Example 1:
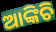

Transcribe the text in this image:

ଆଙ୍କିଚି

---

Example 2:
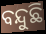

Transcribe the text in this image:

ବନ୍ଦୁଛି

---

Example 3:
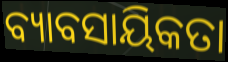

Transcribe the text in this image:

ବ୍ୟାବସାୟିକତା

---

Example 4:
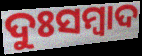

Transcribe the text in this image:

ଦୁଃସମ୍ୱାଦ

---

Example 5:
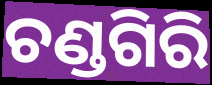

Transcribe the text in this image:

ଚଣ୍ଡଗିରି